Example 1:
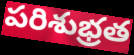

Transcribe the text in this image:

పరిశుభ్రత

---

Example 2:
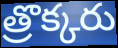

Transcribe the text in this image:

త్రొక్కరు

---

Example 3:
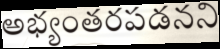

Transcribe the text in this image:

అభ్యంతరపడనని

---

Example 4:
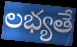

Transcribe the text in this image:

లభ్యతే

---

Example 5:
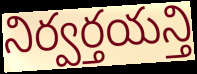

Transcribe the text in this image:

నిర్వర్తయన్తి